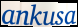
ankusa